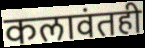
कलावंतही